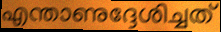
എന്താണുദ്ദേശിച്ചത്